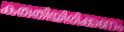
കരുതിയിരിക്കണം